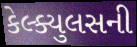
કેલ્ક્યુલસની